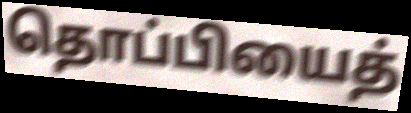
தொப்பியைத்